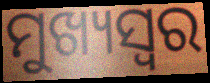
ମୁଖ୍ୟସ୍ୱର